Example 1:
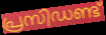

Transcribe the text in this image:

പ്രസിഡണ്ട്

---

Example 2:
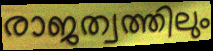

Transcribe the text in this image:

രാജത്വത്തിലും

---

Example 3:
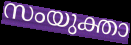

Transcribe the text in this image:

സംയുക്താ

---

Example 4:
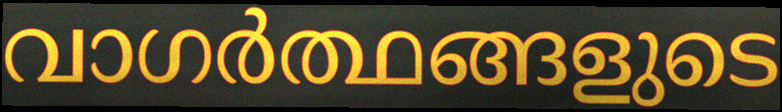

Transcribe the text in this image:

വാഗർത്ഥങ്ങളുടെ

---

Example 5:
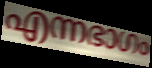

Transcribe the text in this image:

എന്നഭാഗം